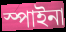
স্পাইনা